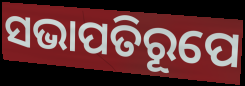
ସଭାପତିରୂପେ